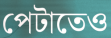
পেটাতেও